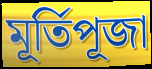
মূর্তিপূজা